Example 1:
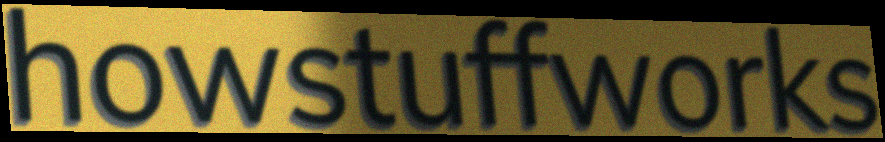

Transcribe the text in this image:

howstuffworks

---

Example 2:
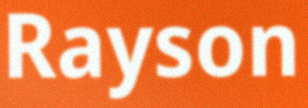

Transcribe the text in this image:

Rayson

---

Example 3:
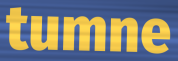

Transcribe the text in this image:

tumne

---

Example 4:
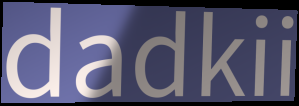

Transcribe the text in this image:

dadkii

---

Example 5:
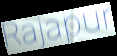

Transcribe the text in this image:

Rajapur